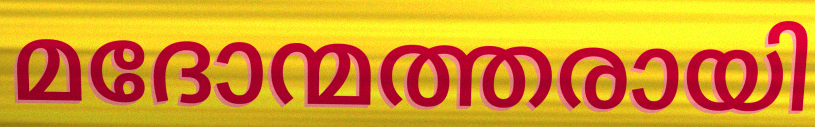
മദോന്മത്തരായി